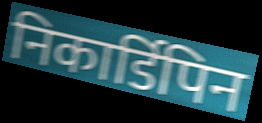
निकार्डिपिन